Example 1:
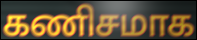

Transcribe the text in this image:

கணிசமாக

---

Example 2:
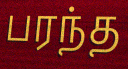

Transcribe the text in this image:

பரந்த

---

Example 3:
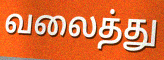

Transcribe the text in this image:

வலைத்து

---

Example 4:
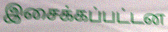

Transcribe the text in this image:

இசைக்கப்பட்டன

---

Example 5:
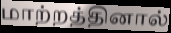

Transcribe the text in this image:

மாற்றத்தினால்